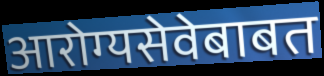
आरोग्यसेवेबाबत